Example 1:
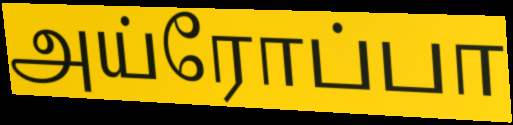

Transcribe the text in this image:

அய்ரோப்பா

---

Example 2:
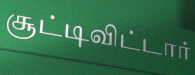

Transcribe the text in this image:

சூட்டிவிட்டார்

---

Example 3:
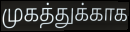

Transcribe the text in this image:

முகத்துக்காக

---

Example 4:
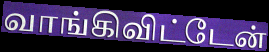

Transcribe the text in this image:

வாங்கிவிட்டேன்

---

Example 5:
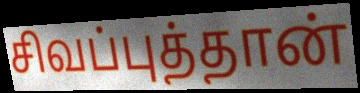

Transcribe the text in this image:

சிவப்புத்தான்